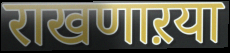
राखणाऱया